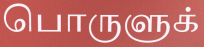
பொருளுக்